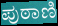
ಪುಠಾಣಿ